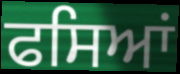
ਫਸਿਆਂ